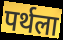
पर्थला